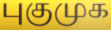
புகுமுக